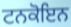
ਟਨਕੋਇਨ